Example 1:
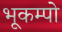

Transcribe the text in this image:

भूकम्पो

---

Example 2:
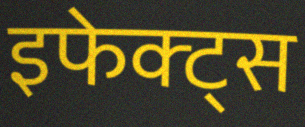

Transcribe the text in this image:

इफेक्‍ट्स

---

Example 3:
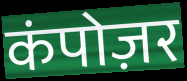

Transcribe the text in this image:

कंपोज़र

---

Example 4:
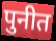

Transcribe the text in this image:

पुनीत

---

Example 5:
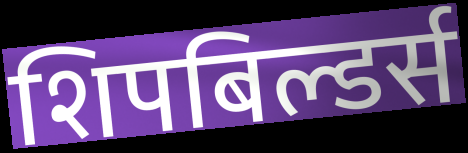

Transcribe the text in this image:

शिपबिल्डर्स